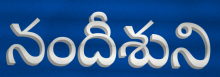
నందీశుని